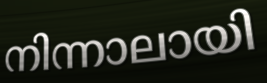
നിന്നാലായി